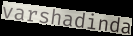
varshadinda